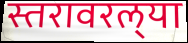
स्तरावरल्या